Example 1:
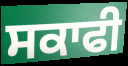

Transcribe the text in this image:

ਸਕਾਫੀ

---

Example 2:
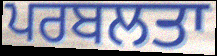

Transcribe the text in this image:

ਪਰਬਲਤਾ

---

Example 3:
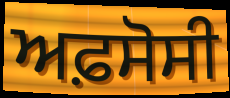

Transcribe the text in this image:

ਅਫ਼ਸੋਸੀ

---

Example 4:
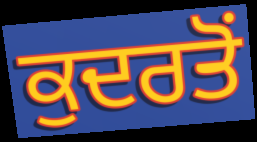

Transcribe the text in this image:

ਕੁਦਰਤੋਂ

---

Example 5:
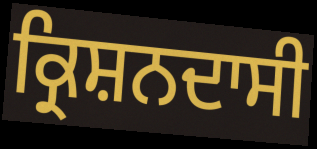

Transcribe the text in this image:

ਕ੍ਰਿਸ਼ਨਦਾਸੀ